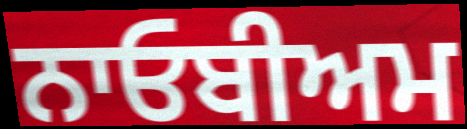
ਨਾਓਬੀਅਮ